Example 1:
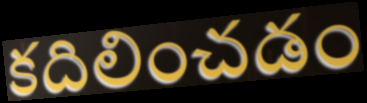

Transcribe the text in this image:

కదిలించడం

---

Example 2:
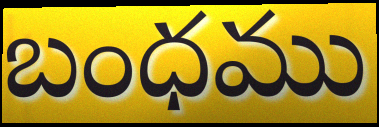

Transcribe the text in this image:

బంధము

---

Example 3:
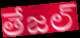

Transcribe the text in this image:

తేజల్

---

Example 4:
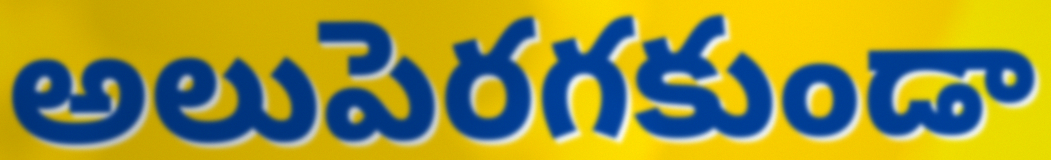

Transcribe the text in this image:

అలుపెరగకుండా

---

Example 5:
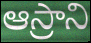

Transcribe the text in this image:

ఆస్రాని